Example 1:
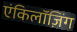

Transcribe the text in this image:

एंकिलॉज़िंग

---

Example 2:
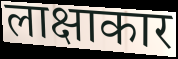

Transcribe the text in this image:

लाक्षाकार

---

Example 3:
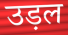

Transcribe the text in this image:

उड़ल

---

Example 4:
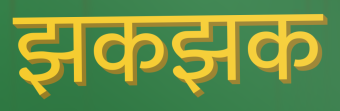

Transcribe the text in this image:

झकझक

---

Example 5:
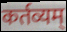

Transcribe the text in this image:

कर्तव्यम्